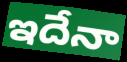
ఇదేనా